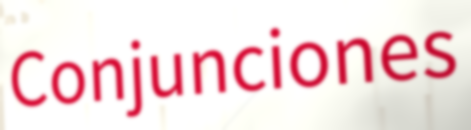
Conjunciones